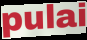
pulai